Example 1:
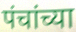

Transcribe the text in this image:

पंचांच्या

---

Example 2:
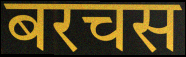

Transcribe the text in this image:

बरचस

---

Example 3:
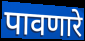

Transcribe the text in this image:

पावणारे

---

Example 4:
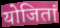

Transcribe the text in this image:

योजितां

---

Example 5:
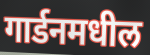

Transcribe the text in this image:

गार्डनमधील